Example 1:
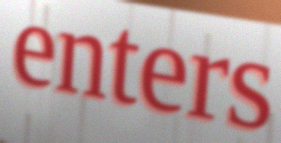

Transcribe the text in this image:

enters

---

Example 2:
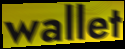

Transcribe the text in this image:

wallet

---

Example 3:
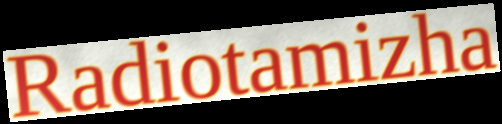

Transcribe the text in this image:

Radiotamizha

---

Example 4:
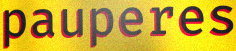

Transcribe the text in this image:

pauperes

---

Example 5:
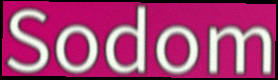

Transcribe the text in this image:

Sodom